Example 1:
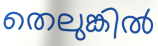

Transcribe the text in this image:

തെലുങ്കിൽ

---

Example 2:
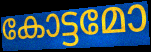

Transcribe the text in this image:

കോട്ടമോ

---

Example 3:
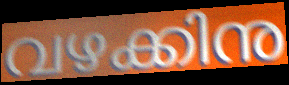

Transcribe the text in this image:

വഴക്കിനു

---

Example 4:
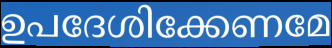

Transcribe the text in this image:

ഉപദേശിക്കേണമേ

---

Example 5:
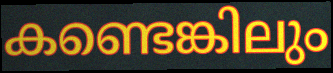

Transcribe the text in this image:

കണ്ടെങ്കിലും